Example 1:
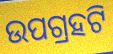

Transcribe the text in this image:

ଉପଗ୍ରହଟି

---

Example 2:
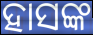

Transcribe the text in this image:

ହାସଙ୍କ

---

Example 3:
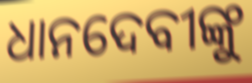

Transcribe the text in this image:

ଧାନଦେବୀଙ୍କୁ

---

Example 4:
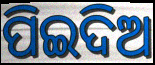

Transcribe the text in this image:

ପିଇଦିଅ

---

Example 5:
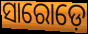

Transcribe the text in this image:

ସାରୋଡ଼େ